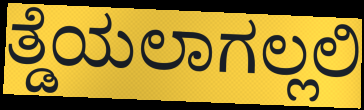
ತ್ಡೆಯಲಾಗಲ್ಲಲಿ